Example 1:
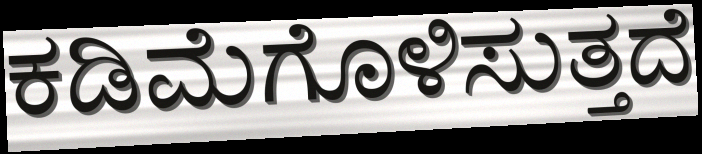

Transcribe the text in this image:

ಕಡಿಮೆಗೊಳಿಸುತ್ತದೆ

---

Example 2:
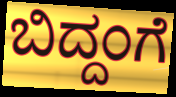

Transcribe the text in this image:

ಬಿದ್ದಂಗೆ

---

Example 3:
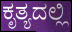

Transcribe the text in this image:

ಕೃತ್ಯದಲ್ಲಿ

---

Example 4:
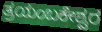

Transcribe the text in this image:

ತ್ರಯಂಬಕೇಶ್ವರ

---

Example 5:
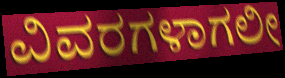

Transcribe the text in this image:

ವಿವರಗಳಾಗಲೀ